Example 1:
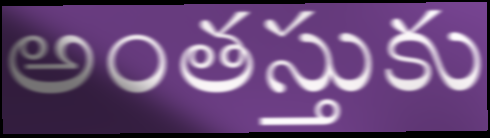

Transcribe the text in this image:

అంతస్తుకు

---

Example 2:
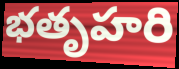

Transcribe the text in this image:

భతృహరి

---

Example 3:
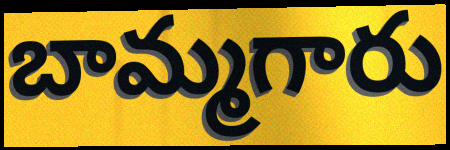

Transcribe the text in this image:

బామ్మగారు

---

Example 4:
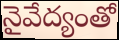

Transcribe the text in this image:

నైవేద్యంతో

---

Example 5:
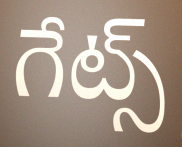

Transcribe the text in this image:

గేట్స్